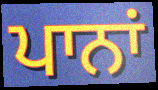
ਪਾਨਾਂ